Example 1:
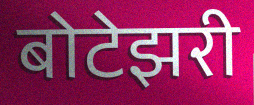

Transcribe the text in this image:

बोटेझरी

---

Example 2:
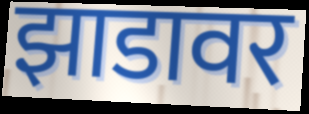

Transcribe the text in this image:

झाडावर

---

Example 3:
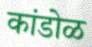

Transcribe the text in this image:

कांडोळ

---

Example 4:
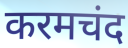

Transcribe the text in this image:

करमचंद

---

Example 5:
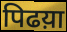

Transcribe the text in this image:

पिढय़ा